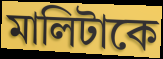
মালিটাকে